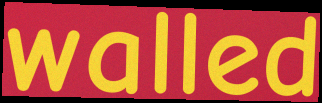
walled